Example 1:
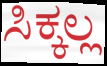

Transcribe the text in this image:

ಸಿಕ್ಕಲ್ಲ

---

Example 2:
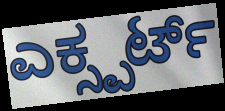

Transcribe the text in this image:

ಎಕ್ಸ್ಪರ್ಟ್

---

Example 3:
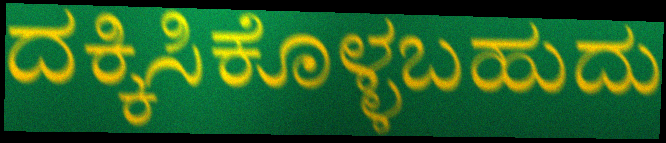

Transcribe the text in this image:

ದಕ್ಕಿಸಿಕೊಳ್ಳಬಹುದು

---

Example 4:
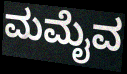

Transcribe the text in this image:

ಮಮೈವ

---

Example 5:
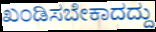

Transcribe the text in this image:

ಖಂಡಿಸಬೇಕಾದದ್ದು